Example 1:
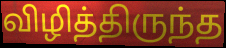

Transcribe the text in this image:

விழித்திருந்த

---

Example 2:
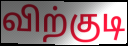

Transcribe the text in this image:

விற்குடி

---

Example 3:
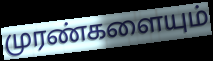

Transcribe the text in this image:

முரண்களையும்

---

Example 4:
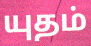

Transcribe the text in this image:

யுதம்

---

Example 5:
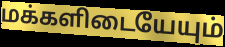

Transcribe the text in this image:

மக்களிடையேயும்